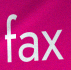
fax